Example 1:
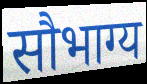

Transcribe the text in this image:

सौभाग्य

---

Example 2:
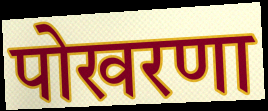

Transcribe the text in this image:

पोखरणा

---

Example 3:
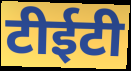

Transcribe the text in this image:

टीईटी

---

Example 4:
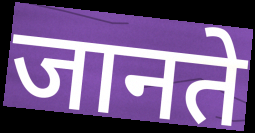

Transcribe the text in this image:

जानते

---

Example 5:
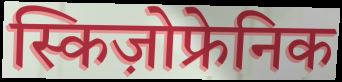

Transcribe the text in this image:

स्किज़ोफ्रेनिक